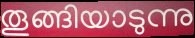
തൂങ്ങിയാടുന്നു